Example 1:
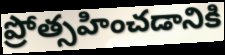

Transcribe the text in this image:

ప్రోత్సహించడానికి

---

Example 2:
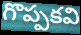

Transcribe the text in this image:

గొప్పకవి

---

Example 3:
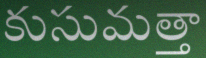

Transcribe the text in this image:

కుసుమత్తా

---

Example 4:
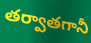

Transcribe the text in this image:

తర్వాతగానీ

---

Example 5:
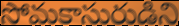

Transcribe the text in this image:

సోమకాసురుడిని